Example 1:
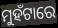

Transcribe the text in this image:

ମୁହଁଟାରେ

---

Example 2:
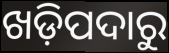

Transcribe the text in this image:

ଖଡ଼ିପଦାରୁ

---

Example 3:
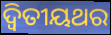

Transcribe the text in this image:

ଦ୍ବିତୀୟଥର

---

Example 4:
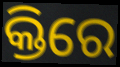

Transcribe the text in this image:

କ୍ତିରେ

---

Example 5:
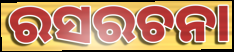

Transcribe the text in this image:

ରସରଚନା